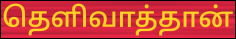
தெளிவாத்தான்